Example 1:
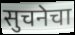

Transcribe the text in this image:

सुचनेचा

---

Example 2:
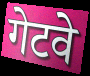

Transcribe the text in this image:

गेटवे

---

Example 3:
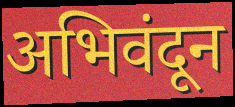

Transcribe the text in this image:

अभिवंदून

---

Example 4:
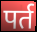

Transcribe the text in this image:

पर्त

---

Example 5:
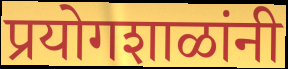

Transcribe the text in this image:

प्रयोगशाळांनी